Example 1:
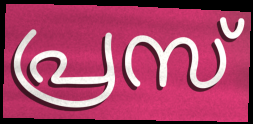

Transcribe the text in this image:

പ്രസ്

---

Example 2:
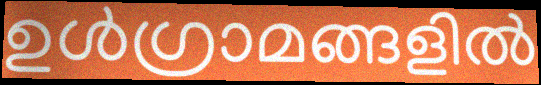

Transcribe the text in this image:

ഉൾഗ്രാമങ്ങളിൽ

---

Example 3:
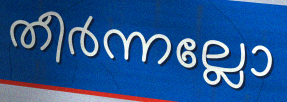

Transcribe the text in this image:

തീർന്നല്ലോ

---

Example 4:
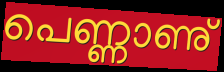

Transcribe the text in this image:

പെണ്ണാണു്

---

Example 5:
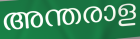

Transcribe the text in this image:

അന്തരാള